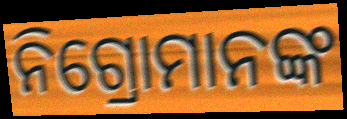
ନିଗ୍ରୋମାନଙ୍କ